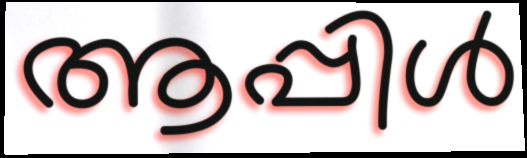
ആപ്പിൾ